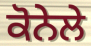
ਕੋਨੇਲੇ